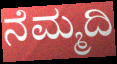
ನೆಮ್ಮದಿ